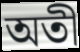
অতী